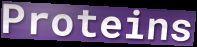
Proteins